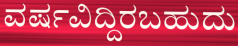
ವರ್ಷವಿದ್ದಿರಬಹುದು